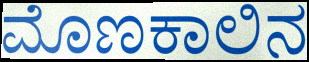
ಮೊಣಕಾಲಿನ